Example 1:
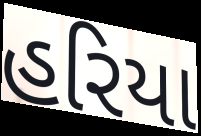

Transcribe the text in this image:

હરિયા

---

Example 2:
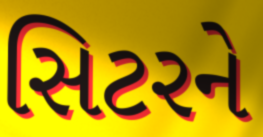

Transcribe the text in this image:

સિટરને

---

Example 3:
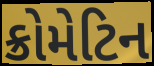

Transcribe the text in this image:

ક્રોમેટિન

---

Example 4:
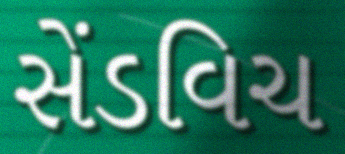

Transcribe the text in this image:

સેંડવિચ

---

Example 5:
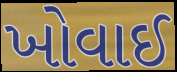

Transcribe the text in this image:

ખોવાઈ